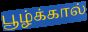
பூழ்க்கால்